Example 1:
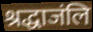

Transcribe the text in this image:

श्रद्धाजंलि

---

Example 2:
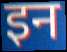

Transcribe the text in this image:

इन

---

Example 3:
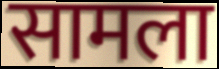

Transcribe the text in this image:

सामला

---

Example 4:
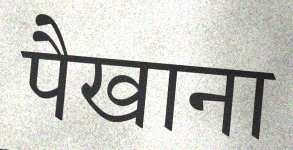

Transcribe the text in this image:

पैखाना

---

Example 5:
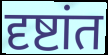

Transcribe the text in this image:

दृष्टांत